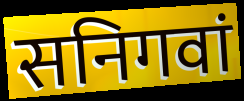
सनिगवां